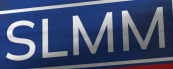
SLMM